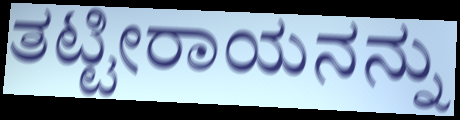
ತಟ್ಟೀರಾಯನನ್ನು